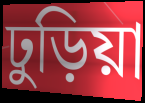
ঢুড়িয়া